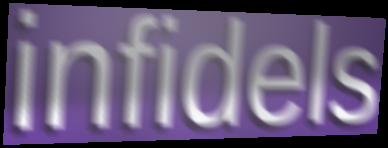
infidels